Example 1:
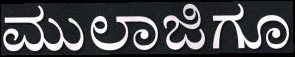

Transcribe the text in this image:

ಮುಲಾಜಿಗೂ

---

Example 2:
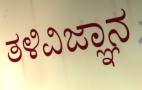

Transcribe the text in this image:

ತಳಿವಿಜ್ಞಾನ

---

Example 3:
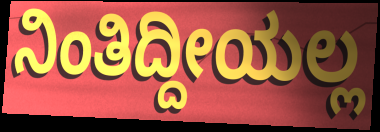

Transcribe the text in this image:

ನಿಂತಿದ್ದೀಯಲ್ಲ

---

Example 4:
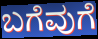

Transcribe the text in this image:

ಬಗೆವುಗೆ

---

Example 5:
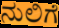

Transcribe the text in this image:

ನುಲಿಗೆ